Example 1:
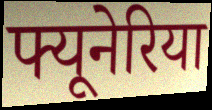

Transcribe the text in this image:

फ्यूनेरिया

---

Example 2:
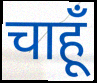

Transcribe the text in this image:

चाहूँ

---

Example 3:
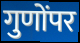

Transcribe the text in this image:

गुणोंपर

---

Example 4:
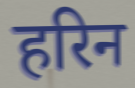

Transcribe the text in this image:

हरिन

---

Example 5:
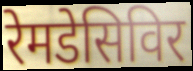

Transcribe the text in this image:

रेमडेसिविर